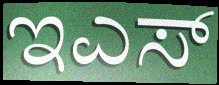
ಇಎಸ್